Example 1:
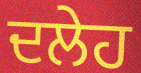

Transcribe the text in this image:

ਦਲੇਹ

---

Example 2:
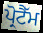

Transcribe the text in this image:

ਪ੍ਰੋਟੈੱਮ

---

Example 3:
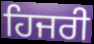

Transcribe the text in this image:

ਹਿਜਰੀ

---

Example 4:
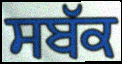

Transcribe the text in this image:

ਸਬੱਕ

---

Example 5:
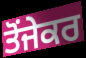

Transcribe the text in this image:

ਤੋਂਜੇਕਰ